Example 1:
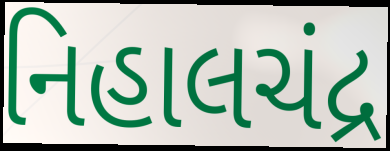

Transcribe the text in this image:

નિહાલચંદ્ર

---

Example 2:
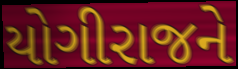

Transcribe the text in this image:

યોગીરાજને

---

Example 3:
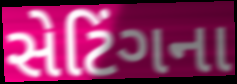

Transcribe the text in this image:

સેટિંગના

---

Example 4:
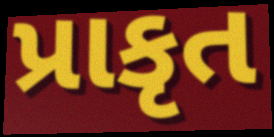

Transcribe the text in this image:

પ્રાકૃત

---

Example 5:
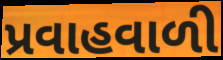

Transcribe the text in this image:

પ્રવાહવાળી